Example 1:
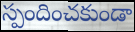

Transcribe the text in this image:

స్పందించకుండా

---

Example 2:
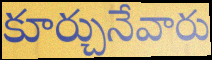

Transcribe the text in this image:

కూర్చునేవారు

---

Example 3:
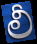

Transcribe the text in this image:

లీ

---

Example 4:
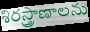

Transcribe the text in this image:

శిరస్త్రాణాలను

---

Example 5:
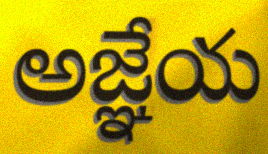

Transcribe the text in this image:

అజ్ఞేయ